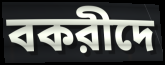
বকরীদে